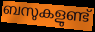
ബസുകളുണ്ട്